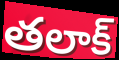
తలాక్